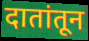
दातांतून